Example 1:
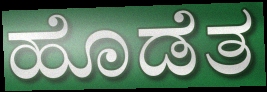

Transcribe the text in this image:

ಹೊಡೆತ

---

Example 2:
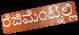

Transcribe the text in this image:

ರೆಜಿಮೆಂಟ್ನಲ್ಲಿ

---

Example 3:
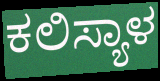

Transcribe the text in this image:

ಕಲಿಸ್ಯಾಳ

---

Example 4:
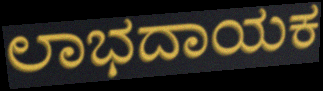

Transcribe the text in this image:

ಲಾಭದಾಯಕ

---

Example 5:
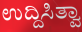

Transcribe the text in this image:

ಉದ್ದಿಸಿತ್ವಾ